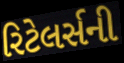
રિટેલર્સની